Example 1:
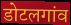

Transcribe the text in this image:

डोटलगांव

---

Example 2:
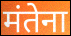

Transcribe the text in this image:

मंतेना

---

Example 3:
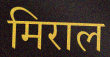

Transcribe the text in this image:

मिराल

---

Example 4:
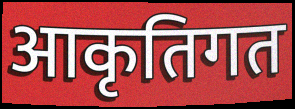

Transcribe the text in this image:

आकृतिगत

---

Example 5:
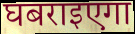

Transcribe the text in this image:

घबराइएगा